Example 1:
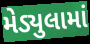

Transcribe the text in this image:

મેડ્યુલામાં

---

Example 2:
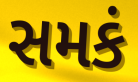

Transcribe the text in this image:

સમકં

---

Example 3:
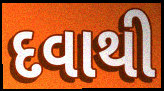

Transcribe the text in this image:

દવાથી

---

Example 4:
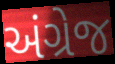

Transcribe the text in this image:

અંગ્રેજ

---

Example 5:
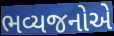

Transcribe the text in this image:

ભવ્યજનોએ